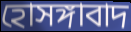
হোসঙ্গাবাদ